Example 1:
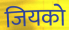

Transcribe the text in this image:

जियको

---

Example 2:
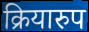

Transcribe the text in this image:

क्रियारुप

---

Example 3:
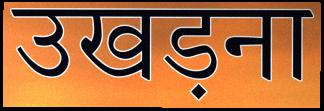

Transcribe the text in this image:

उखड़ना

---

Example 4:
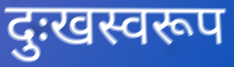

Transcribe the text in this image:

दुःखस्वरूप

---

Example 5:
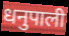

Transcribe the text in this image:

धनुपाली